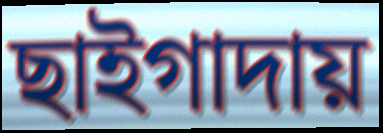
ছাইগাদায়